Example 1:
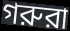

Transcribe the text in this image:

গরুরা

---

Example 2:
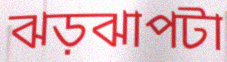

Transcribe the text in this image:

ঝড়ঝাপটা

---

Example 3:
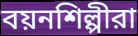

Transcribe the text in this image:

বয়নশিল্পীরা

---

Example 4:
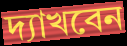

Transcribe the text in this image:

দ্যাখবেন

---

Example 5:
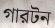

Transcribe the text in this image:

গারটন